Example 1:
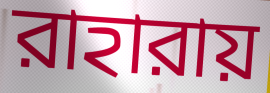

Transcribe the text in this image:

রাহারায়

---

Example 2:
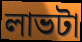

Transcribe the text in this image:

লাভটা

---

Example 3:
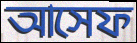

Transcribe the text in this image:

আসেফ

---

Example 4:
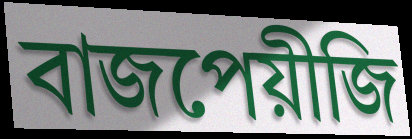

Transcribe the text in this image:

বাজপেয়ীজি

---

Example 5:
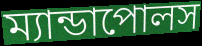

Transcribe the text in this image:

ম্যান্ডাপোলস